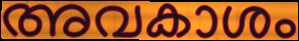
അവകാശം